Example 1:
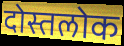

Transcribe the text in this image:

दोस्तलोक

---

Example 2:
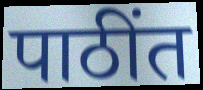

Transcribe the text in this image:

पाठींत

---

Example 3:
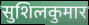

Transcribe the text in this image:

सुशिलकुमार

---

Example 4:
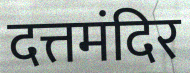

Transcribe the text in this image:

दत्तमंदिर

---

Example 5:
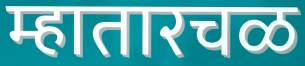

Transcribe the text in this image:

म्हातारचळ